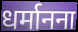
धर्मानना